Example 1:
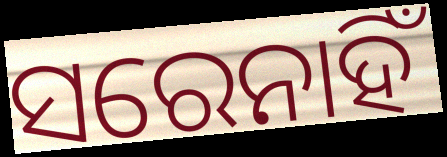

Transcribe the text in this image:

ସରେନାହିଁ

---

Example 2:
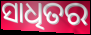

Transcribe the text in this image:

ସାଧିତର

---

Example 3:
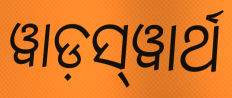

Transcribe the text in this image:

ୱାଡ଼ସ୍‌ୱାର୍ଥ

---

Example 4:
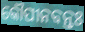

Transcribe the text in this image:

କୌପୀନବନ୍ତଃ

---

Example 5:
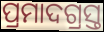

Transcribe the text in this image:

ପ୍ରମାଦଗ୍ରସ୍ତ